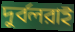
দুর্বলরাই